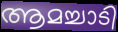
ആമച്ചാടി